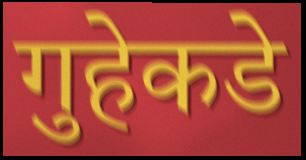
गुहेकडे